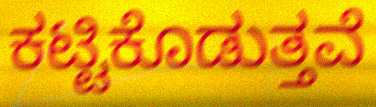
ಕಟ್ಟಿಕೊಡುತ್ತವೆ